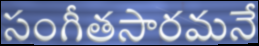
సంగీతసారమనే